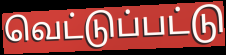
வெட்டுப்பட்டு